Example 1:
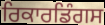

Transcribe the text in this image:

ਰਿਕਾਰਡਿੰਗਸ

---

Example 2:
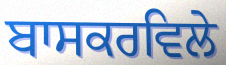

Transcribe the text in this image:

ਬਾਸਕਰਵਿਲੇ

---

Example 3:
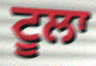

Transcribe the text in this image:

ਟੂਲਾ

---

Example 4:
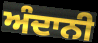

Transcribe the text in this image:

ਅੰਦਾਨੀ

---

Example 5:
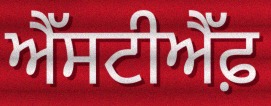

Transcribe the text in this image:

ਐੱਸਟੀਐੱਫ਼